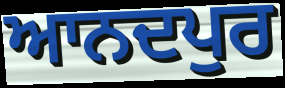
ਆਨਦਪੁਰ